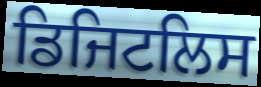
ਡਿਜਿਟਲਿਸ